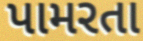
પામરતા